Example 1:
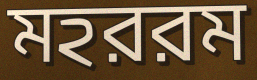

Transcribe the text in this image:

মহররম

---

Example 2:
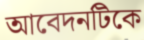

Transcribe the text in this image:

আবেদনটিকে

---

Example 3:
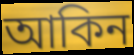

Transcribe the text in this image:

আকিন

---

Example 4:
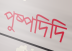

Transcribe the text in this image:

পুষ্পদিদি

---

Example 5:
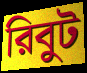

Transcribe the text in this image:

রিবুট